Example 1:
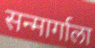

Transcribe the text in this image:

सन्मार्गाला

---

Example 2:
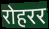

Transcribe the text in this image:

रोहरर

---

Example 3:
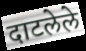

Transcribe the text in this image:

दाटलेले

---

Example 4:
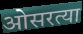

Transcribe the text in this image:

ओसरत्या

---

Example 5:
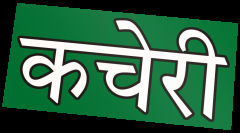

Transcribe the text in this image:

कचेरी